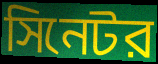
সিনেটর